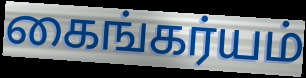
கைங்கர்யம்